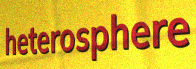
heterosphere